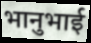
भानुभाई